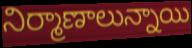
నిర్మాణాలున్నాయి